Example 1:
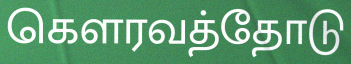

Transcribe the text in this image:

கௌரவத்தோடு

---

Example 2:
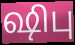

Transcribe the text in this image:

ஷிபு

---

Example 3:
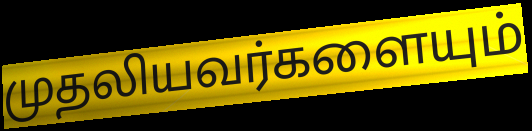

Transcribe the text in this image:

முதலியவர்களையும்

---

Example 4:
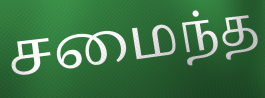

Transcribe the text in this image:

சமைந்த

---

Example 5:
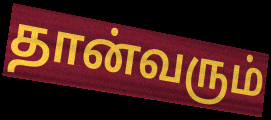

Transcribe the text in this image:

தான்வரும்